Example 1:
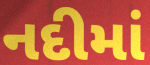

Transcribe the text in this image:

નદીમાં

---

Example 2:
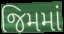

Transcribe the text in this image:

જિમમાં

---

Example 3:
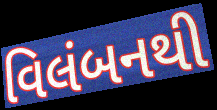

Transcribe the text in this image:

વિલંબનથી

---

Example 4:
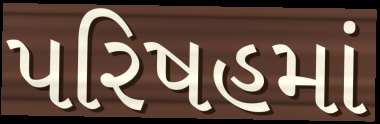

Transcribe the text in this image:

પરિષહમાં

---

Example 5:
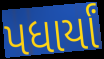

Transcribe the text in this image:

પધાર્યાં